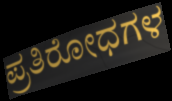
ಪ್ರತಿರೋಧಗಳ